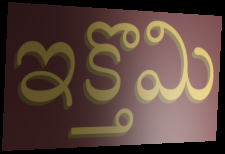
ఇక్తొమి